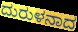
ದುರುಳನಾದ